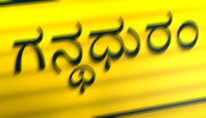
ಗನ್ಥಧುರಂ